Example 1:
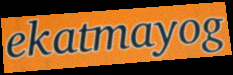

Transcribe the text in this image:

ekatmayog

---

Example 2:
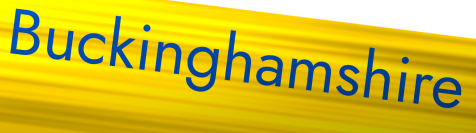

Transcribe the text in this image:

Buckinghamshire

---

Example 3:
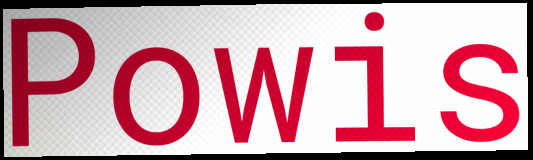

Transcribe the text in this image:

Powis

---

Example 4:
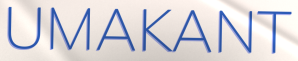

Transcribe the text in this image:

UMAKANT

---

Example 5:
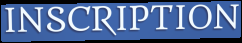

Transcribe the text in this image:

INSCRIPTION